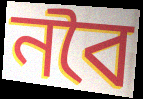
নবৈ